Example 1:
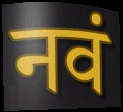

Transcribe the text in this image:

नवं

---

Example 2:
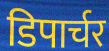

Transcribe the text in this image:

डिपार्चर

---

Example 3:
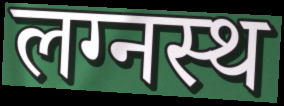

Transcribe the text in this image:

लग्नस्थ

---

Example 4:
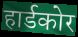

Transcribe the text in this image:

हार्डकोर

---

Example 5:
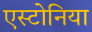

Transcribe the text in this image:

एस्‍टोनिया